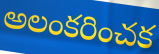
అలంకరించక